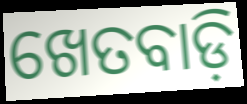
ଖେତବାଡ଼ି